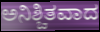
ಅನಿಶ್ಚಿತವಾದ